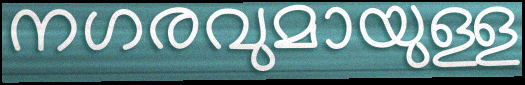
നഗരവുമായുള്ള